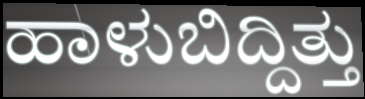
ಹಾಳುಬಿದ್ದಿತ್ತು